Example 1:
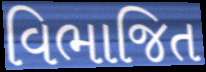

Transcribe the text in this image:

વિભાજિત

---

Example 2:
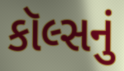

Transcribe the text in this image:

કૉલ્સનું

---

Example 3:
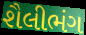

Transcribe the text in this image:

શૈલીભંગ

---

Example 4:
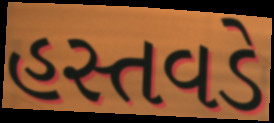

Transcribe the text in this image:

હસ્તવડે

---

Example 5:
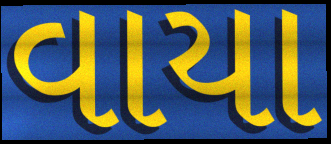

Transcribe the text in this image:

વાયા